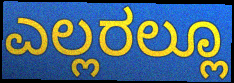
ಎಲ್ಲರಲ್ಲೂ